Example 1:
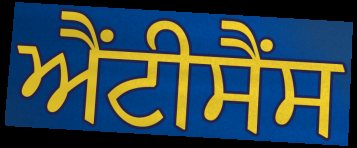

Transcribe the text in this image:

ਐਂਟੀਸੈਂਸ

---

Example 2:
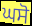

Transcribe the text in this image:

ਘਸੋ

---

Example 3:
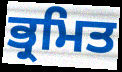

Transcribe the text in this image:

ਭ੍ਰਮਿਤ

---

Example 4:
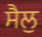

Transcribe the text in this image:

ਸੈਲੁ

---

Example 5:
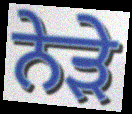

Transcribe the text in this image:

ਨੇਡ਼ੇ